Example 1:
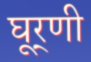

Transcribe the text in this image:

घूर्णी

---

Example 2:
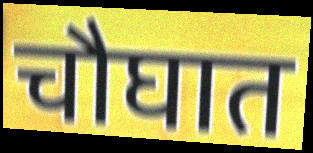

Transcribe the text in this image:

चौघात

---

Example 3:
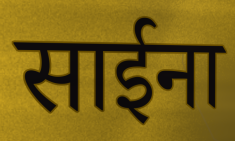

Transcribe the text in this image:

साईना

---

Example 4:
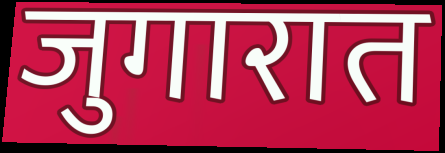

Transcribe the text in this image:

जुगारात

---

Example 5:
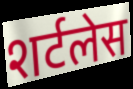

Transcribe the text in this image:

शर्टलेस